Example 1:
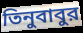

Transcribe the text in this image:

তিনুবাবুর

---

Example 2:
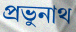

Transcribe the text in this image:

প্রভুনাথ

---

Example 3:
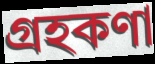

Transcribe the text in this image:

গ্রহকণা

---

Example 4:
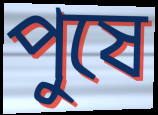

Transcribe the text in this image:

পুষে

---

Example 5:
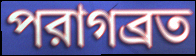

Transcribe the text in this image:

পরাগব্রত